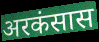
अरकंसास